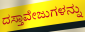
ದಸ್ತಾವೇಜುಗಳನ್ನು